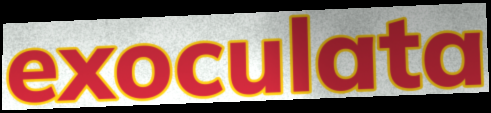
exoculata